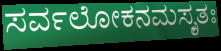
ಸರ್ವಲೋಕನಮಸ್ಕೃತಃ